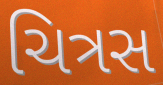
ચિત્રસ